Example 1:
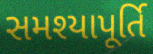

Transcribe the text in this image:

સમશ્યાપૂર્તિ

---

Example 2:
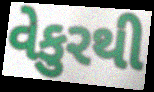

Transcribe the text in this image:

વેકુરથી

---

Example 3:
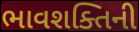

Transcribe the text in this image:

ભાવશક્તિની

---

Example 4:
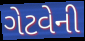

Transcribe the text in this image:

ગેટવેની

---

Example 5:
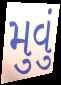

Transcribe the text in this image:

મુવું